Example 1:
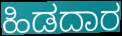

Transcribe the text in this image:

ಹಿಡದಾರ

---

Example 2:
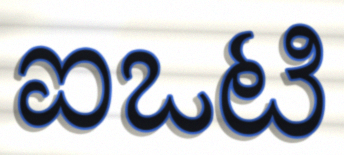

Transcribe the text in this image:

ಐಒಟಿ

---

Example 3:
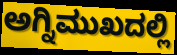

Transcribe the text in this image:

ಅಗ್ನಿಮುಖದಲ್ಲಿ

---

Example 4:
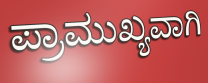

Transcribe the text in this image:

ಪ್ರಾಮುಖ್ಯವಾಗಿ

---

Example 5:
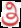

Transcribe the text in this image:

ತಿ